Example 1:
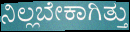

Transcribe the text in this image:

ನಿಲ್ಲಬೇಕಾಗಿತ್ತು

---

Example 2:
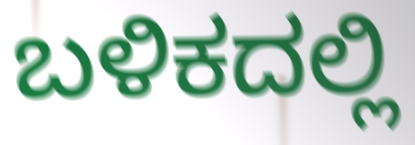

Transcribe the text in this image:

ಬಳಿಕದಲ್ಲಿ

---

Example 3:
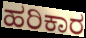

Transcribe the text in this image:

ಹರಿಕಾರ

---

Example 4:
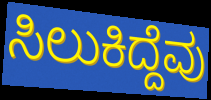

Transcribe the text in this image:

ಸಿಲುಕಿದ್ದೆವು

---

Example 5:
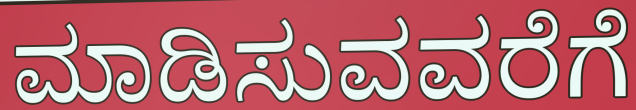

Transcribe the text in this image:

ಮಾಡಿಸುವವರೆಗೆ